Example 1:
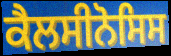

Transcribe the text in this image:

ਕੈਲਸੀਨੋਸਿਸ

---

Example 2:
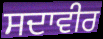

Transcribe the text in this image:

ਸਦਾਵੀਰ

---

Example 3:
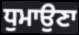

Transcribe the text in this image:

ਧੁਮਾਉਣਾ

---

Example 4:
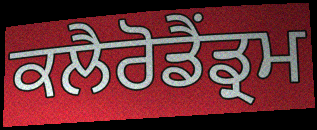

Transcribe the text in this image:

ਕਲੈਰੋਡੈਂਡ੍ਰਮ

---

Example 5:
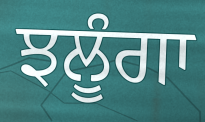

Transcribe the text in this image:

ਝਲੂੰਗਾ